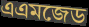
এএমজেড